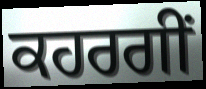
ਕਹਰਗੀਂ